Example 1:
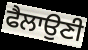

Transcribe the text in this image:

ਫੈਲਾਉਣੀ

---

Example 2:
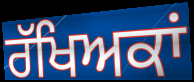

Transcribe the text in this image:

ਰੱਖਿਅਕਾਂ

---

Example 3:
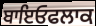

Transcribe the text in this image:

ਬਾਇਓਫਲਾਕ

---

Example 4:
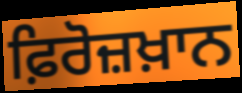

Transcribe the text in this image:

ਫ਼ਿਰੋਜ਼ਖ਼ਾਨ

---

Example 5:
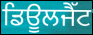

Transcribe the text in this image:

ਡਿਊਲਜੈੱਟ